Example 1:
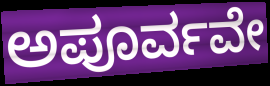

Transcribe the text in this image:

ಅಪೂರ್ವವೇ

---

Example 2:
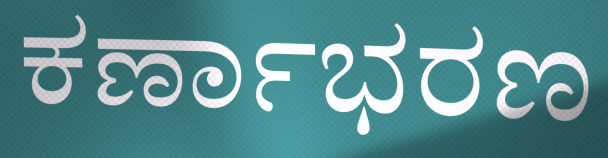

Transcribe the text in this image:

ಕರ್ಣಾಭರಣ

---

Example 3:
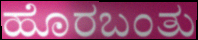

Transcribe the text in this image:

ಹೊರಬಂತು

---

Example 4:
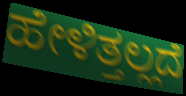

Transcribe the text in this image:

ಹೇಳಿತ್ತಲ್ಲದೆ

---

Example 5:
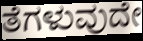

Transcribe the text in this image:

ತೆಗಳುವುದೇ